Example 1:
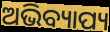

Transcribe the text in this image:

ଅଭିବ୍ୟାପ୍ୟ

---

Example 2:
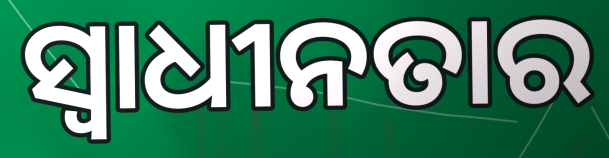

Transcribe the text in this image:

ସ୍ବାଧୀନତାର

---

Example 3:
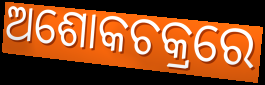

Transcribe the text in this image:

ଅଶୋକଚକ୍ରରେ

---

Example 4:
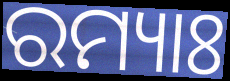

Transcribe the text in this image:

ରମ୍ୟାଃ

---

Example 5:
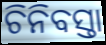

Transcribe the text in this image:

ଚିନିବସ୍ତା